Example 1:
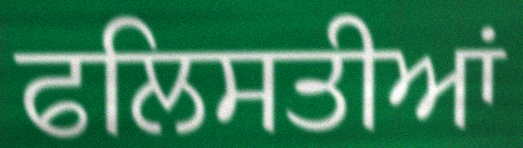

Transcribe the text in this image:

ਫਲਿਸਤੀਆਂ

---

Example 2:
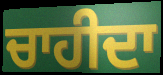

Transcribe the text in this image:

ਚਾਹੀਦਾ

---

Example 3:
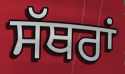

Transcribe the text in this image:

ਸੱਥਰਾਂ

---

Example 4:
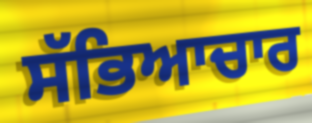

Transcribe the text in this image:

ਸੱਭਿਆਚਾਰ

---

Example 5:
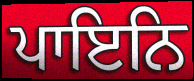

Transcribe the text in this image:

ਪਾਇਨਿ